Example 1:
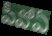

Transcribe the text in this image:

పీవోఏ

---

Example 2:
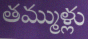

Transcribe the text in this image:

తమ్ముళ్లు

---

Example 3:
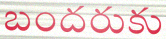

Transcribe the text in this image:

బందరుకు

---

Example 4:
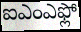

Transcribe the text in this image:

ఐఎంఎఫ్లో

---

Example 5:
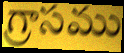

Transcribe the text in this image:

గ్రాసము